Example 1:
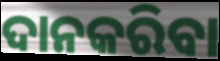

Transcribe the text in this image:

ଦାନକରିବା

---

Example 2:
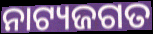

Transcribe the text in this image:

ନାଟ୍ୟଜଗତ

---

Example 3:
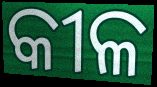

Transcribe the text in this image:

କୀଳ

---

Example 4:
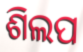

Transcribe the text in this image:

ଶିଲପ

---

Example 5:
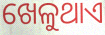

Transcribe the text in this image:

ଖେଳୁଥାଏ